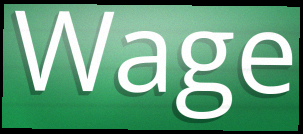
Wage